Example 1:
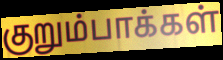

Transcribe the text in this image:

குறும்பாக்கள்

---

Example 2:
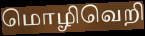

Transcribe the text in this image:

மொழிவெறி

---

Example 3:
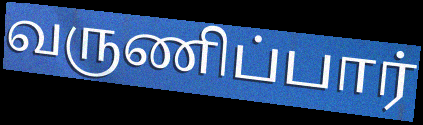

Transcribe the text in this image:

வருணிப்பார்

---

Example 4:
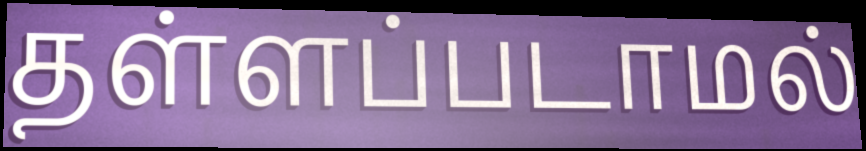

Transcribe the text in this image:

தள்ளப்படாமல்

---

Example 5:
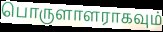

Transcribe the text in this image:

பொருளாளராகவும்